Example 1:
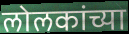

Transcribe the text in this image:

लोलकांच्या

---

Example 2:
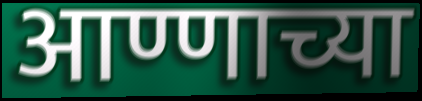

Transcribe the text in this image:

आण्णाच्या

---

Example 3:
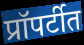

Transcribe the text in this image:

प्रॉपर्टीत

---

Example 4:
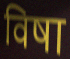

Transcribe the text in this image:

विषा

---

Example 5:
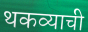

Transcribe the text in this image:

थकव्याची